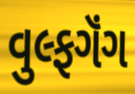
વુલ્ફગૅંગ